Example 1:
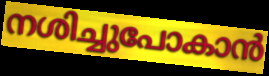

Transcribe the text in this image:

നശിച്ചുപോകാൻ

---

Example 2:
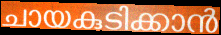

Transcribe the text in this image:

ചായകുടിക്കാൻ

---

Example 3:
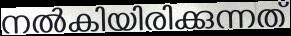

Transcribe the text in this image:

നൽകിയിരിക്കുന്നത്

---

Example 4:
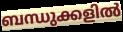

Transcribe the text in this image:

ബന്ധുക്കളിൽ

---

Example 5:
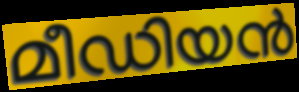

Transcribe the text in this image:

മീഡിയൻ